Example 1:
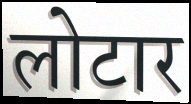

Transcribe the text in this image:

लोटार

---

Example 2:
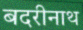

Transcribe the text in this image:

बदरीनाथ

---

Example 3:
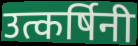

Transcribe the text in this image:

उत्कर्षिनी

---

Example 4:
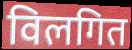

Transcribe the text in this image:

विलगित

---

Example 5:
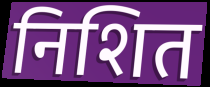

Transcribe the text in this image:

निशित